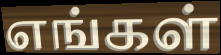
எங்கள்